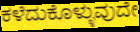
ಕಳೆದುಕೊಳ್ಳುವುದೇ